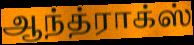
ஆந்த்ராக்ஸ்